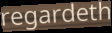
regardeth